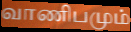
வாணிபமும்